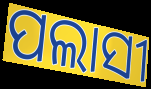
ପଲାସୀ